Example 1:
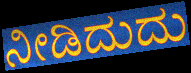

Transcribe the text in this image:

ನೀಡಿದುದು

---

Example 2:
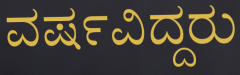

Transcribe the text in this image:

ವರ್ಷವಿದ್ದರು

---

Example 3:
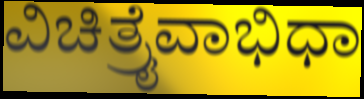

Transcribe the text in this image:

ವಿಚಿತ್ರೈವಾಭಿಧಾ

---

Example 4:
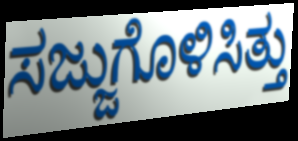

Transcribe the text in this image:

ಸಜ್ಜುಗೊಳಿಸಿತ್ತು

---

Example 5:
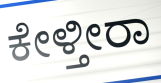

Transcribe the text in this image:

ಕೇಳ್ತೀರಾ